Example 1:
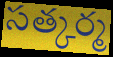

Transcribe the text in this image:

సత్కర్మ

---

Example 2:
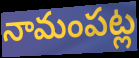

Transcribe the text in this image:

నామంపట్ల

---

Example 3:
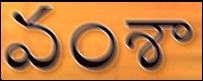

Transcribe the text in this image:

వంశా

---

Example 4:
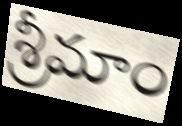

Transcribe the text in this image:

శ్రీమాం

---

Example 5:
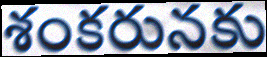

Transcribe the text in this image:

శంకరునకు